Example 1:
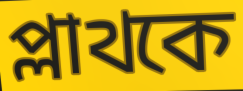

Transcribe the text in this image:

প্লাথকে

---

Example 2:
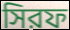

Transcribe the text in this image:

সিরফ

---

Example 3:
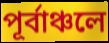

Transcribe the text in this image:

পূর্বাঞ্চলে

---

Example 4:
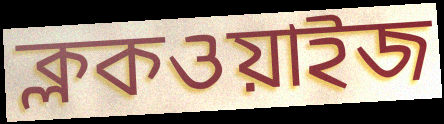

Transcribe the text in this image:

ক্লকওয়াইজ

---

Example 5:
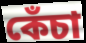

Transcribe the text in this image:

কেঁচা